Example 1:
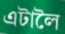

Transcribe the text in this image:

এটালৈ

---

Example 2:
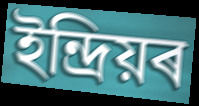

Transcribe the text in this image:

ইন্দ্ৰিয়ৰ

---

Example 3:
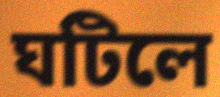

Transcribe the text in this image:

ঘটিলে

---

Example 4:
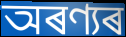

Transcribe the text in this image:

অৰণ্যৰ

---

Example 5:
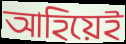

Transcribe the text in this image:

আহিয়েই